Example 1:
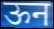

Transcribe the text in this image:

ऊन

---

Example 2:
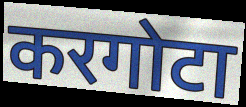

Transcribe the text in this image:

करगोटा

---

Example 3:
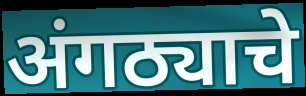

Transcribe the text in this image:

अंगठ्याचे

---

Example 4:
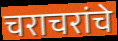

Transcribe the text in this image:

चराचरांचे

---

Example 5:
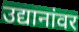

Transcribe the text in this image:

उद्यानांवर